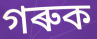
গৰুক